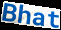
Bhat